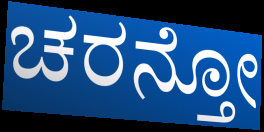
ಚರನ್ತೋ